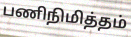
பணிநிமித்தம்